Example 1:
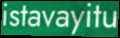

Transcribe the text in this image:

istavayitu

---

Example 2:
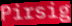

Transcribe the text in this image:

Pirsig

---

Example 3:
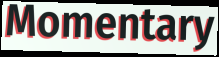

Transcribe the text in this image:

Momentary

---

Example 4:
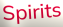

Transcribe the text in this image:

Spirits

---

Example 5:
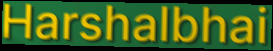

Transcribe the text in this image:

Harshalbhai